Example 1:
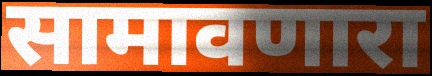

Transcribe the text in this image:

सामावणारा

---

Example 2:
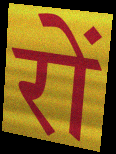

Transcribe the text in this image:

रों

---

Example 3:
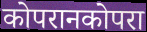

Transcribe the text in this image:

कोपरानकोपरा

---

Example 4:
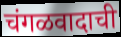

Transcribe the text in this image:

चंगळवादाची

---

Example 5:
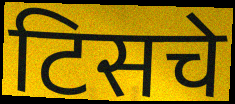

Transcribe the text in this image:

टिसचे